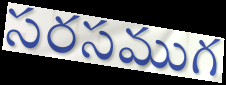
సరసముగ